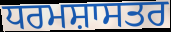
ਧਰਮਸ਼ਾਸਤਰ